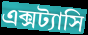
এক্সট্যাসি